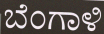
ಬೆಂಗಾಳಿ